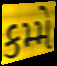
કમ્મે